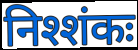
निश्शंकः